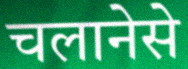
चलानेसे